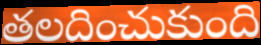
తలదించుకుంది